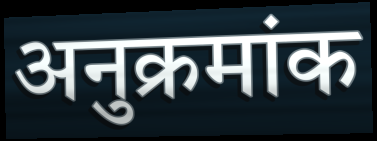
अनुक्रमांक